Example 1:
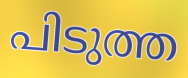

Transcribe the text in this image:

പിടുത്ത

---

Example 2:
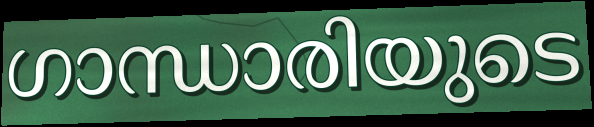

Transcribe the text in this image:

ഗാന്ധാരിയുടെ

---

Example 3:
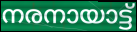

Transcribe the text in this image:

നരനായാട്ട്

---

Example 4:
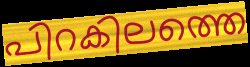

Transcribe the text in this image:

പിറകിലത്തെ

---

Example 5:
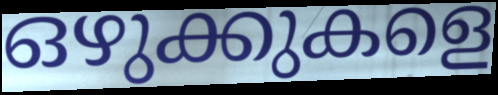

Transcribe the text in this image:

ഒഴുക്കുകളെ